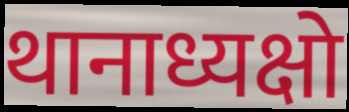
थानाध्यक्षो